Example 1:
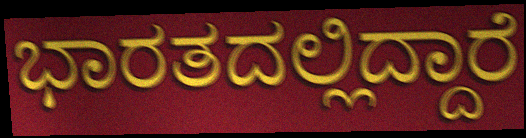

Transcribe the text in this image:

ಭಾರತದಲ್ಲಿದ್ದಾರೆ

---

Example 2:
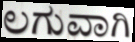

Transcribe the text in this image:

ಲಗುವಾಗಿ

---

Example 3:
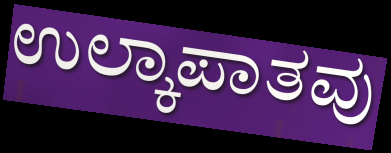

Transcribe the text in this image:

ಉಲ್ಕಾಪಾತವು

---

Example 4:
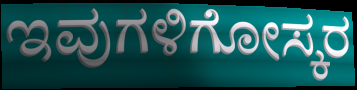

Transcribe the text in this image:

ಇವುಗಳಿಗೋಸ್ಕರ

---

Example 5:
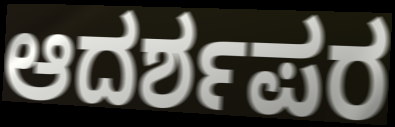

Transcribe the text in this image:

ಆದರ್ಶಪರ